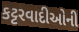
કટ્ટરવાદીઓની